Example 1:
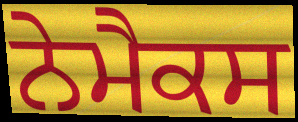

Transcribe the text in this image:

ਨੇਮੈਕਸ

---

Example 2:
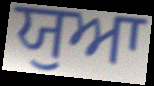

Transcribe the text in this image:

ਯੁਆ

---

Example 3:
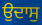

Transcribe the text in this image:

ਉਦਾਸੁ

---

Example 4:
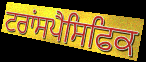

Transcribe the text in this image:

ਟਰਾਂਸਪੈਸਿਫਿਕ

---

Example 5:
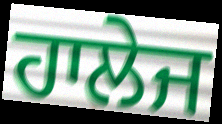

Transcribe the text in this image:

ਹਾਲੇਜ